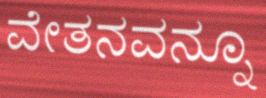
ವೇತನವನ್ನೂ